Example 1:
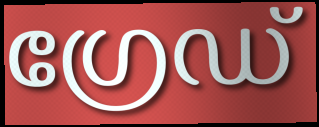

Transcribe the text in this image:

ഗ്രേഡ്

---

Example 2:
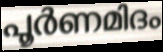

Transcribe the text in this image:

പൂർണമിദം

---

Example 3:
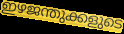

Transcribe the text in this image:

ഇഴജന്തുക്കളുടെ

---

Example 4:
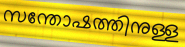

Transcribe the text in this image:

സന്തോഷത്തിനുള്ള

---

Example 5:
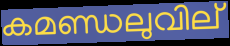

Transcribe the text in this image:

കമണ്ഡലുവില്